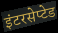
इंटरसेप्टेड